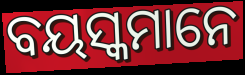
ବୟସ୍କମାନେ